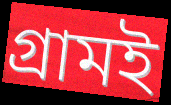
গ্রামই